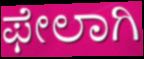
ಫೇಲಾಗಿ